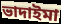
ভাদাইমা